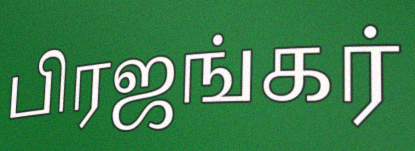
பிரஜங்கர்